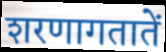
शरणागतातें